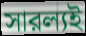
সারল্যই